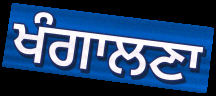
ਖੰਗਾਲਣਾ